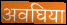
अवघिया